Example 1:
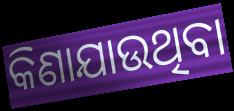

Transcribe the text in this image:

କିଣାଯାଉଥିବା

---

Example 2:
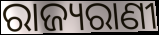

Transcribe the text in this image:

ରାଜ୍ୟରାଣୀ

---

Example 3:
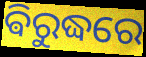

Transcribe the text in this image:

ଵିରୁଦ୍ଧରେ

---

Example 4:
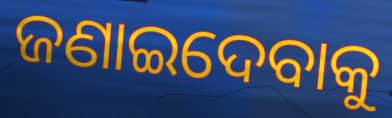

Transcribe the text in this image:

ଜଣାଇଦେବାକୁ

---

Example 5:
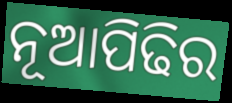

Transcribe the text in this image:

ନୂଆପିଢିର